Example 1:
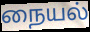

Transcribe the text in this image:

நையல்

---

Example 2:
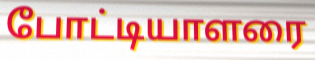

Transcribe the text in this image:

போட்டியாளரை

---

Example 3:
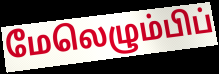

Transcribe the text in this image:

மேலெழும்பிப்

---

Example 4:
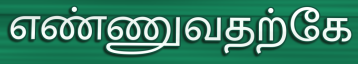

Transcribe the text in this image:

எண்ணுவதற்கே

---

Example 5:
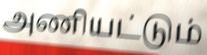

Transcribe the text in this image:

அணியட்டும்